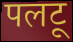
पलटू